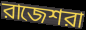
রাজেশরা